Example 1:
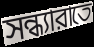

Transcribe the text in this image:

সন্ধ্যারাতে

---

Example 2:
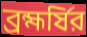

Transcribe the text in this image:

ব্রহ্মর্ষির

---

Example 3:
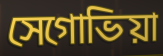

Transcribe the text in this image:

সেগোভিয়া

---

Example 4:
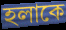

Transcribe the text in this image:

হলাকে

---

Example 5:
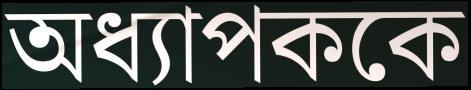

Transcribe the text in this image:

অধ্যাপককে